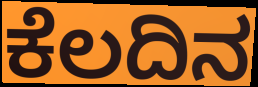
ಕೆಲದಿನ